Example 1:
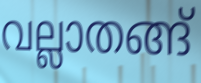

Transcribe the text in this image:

വല്ലാതങ്ങ്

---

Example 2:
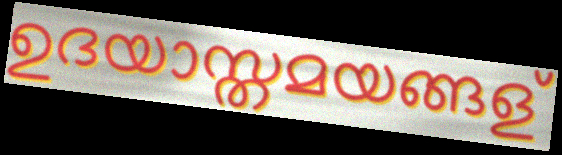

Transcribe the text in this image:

ഉദയാസ്തമയങ്ങള്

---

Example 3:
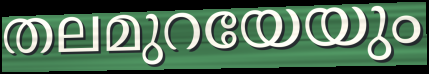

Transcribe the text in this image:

തലമുറയേയും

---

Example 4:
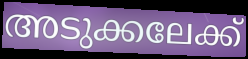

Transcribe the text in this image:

അടുക്കലേക്ക്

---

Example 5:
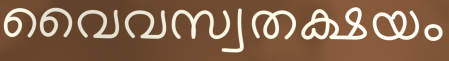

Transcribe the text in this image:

വൈവസ്വതക്ഷയം